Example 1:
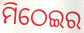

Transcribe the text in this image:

ମିଠେଇର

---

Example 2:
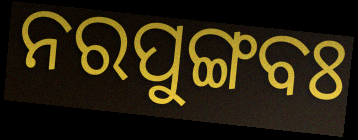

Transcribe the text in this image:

ନରପୁଙ୍ଗବଃ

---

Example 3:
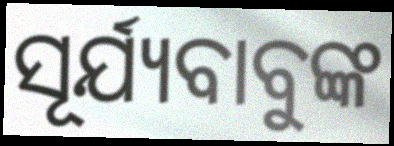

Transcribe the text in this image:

ସୂର୍ଯ୍ୟବାବୁଙ୍କ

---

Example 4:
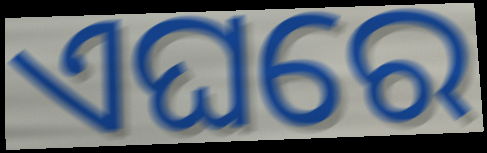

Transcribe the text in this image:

ଏଘରେ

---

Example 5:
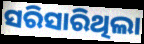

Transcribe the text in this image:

ସରିସାରିଥିଲା